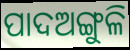
ପାଦଅଙ୍ଗୁଳି